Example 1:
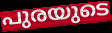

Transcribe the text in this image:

പുരയുടെ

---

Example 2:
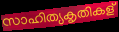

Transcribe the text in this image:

സാഹിത്യകൃതികള്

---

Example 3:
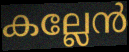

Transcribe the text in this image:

കല്ലേൻ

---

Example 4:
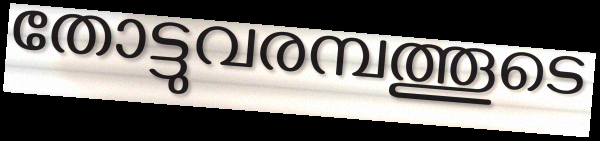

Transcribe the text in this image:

തോട്ടുവരമ്പത്തൂടെ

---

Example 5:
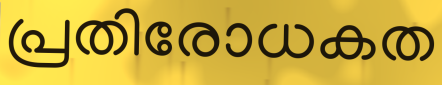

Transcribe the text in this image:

പ്രതിരോധകത